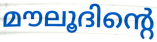
മൗലൂദിന്റെ